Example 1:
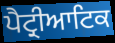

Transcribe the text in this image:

ਪੈਟ੍ਰੀਆਟਿਕ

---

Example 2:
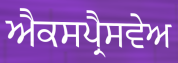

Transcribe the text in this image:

ਐਕਸਪ੍ਰੈਸਵੇਅ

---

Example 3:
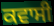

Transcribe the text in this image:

ਕਵਾਸੀ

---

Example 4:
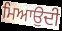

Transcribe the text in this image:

ਮਿਆਉਦੀ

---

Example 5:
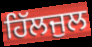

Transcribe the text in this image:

ਹਿੱਲਜੁਲ